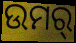
ଉମର୍